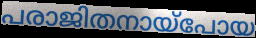
പരാജിതനായ്പോയ